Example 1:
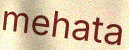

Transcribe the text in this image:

mehata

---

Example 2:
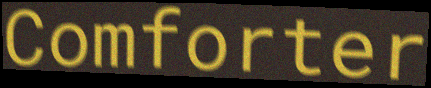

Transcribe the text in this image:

Comforter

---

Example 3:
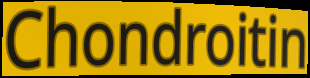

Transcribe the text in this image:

Chondroitin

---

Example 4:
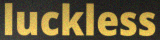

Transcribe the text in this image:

luckless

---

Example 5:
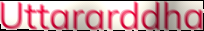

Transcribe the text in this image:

Uttararddha